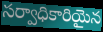
సర్వాధికారియైన